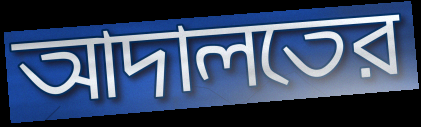
আদালতের